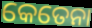
କେତେନା